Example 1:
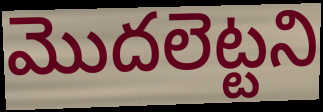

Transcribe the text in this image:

మొదలెట్టని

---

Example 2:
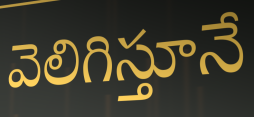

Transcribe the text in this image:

వెలిగిస్తూనే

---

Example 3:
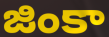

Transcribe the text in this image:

జింకా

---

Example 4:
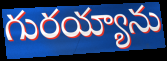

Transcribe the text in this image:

గురయ్యాను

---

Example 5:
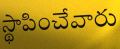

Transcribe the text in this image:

స్థాపించేవారు